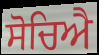
ਸੋਚਿਐ